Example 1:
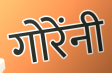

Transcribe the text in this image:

गोरेंनी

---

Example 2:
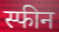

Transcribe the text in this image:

स्फीन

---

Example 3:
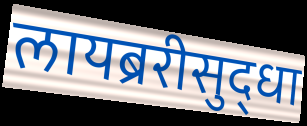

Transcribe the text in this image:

लायब्ररीसुद्धा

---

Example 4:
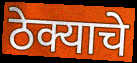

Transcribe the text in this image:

ठेक्याचे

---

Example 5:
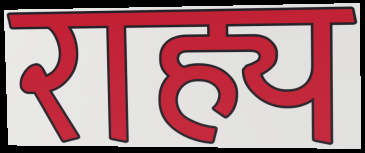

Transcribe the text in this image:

राह्य